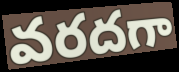
వరదగా